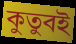
কুতুবই